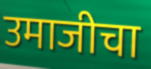
उमाजीचा